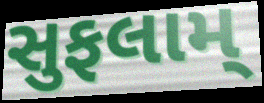
સુફલામ્